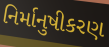
નિર્માનુષીકરણ